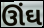
ઊંઘ